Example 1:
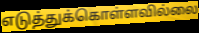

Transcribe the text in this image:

எடுத்துக்கொள்ளவில்லை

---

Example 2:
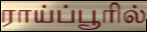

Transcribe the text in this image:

ராய்ப்பூரில்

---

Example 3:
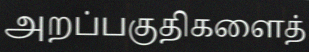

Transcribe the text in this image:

அறப்பகுதிகளைத்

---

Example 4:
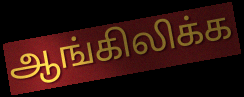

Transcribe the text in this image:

ஆங்கிலிக்க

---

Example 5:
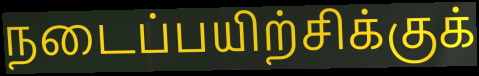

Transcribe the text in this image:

நடைப்பயிற்சிக்குக்